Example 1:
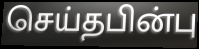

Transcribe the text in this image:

செய்தபின்பு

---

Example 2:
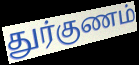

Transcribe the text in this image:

துர்குணம்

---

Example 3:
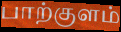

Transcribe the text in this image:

பாற்குளம்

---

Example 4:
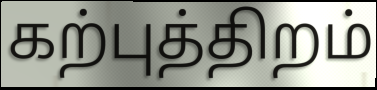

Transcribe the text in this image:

கற்புத்திறம்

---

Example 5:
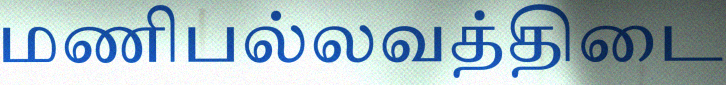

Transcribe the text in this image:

மணிபல்லவத்திடை